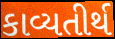
કાવ્યતીર્થ